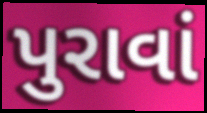
પુરાવાં